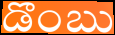
డొంబు